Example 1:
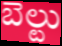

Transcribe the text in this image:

బెల్టు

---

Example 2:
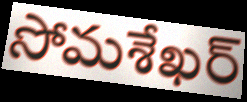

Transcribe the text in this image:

సోమశేఖర్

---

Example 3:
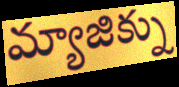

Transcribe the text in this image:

మ్యాజిక్ను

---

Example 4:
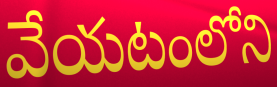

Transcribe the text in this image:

వేయటంలోని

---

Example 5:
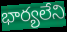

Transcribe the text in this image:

భార్యలేని